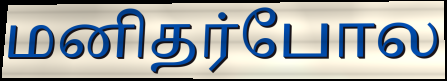
மனிதர்போல